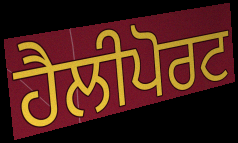
ਹੈਲੀਪੋਰਟ